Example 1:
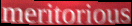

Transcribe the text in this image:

meritorious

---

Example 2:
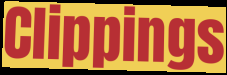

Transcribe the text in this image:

Clippings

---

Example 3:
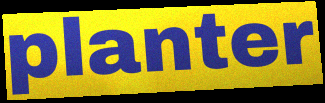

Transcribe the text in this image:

planter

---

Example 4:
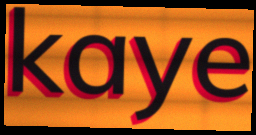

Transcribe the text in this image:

kaye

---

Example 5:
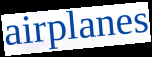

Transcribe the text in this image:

airplanes